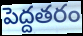
పెద్దతరం